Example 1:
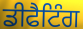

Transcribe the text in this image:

ਡੀਫੈਟਿੰਗ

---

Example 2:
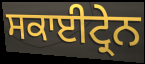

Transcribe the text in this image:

ਸਕਾਈਟ੍ਰੇਨ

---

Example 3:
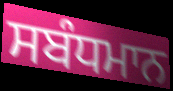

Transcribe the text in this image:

ਸਬੰਧਮਾਨ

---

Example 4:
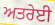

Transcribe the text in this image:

ਅਤਰੇਈ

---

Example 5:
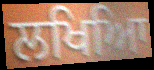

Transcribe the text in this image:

ਲਖਿਆਿ